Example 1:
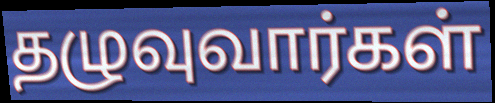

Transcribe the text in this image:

தழுவுவார்கள்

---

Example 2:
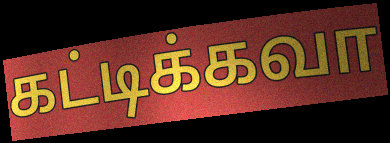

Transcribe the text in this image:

கட்டிக்கவா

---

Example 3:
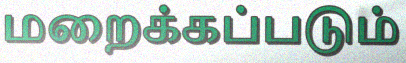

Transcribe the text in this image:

மறைக்கப்படும்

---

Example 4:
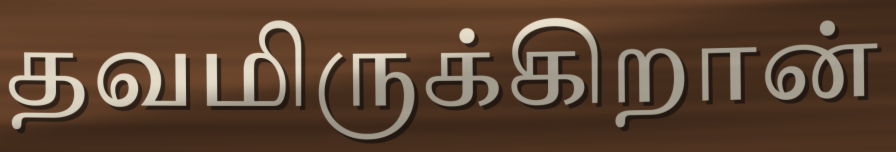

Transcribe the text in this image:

தவமிருக்கிறான்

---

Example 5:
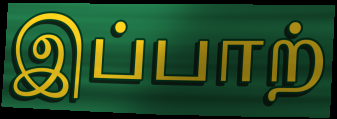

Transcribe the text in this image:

இப்பாற்